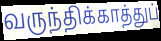
வருந்திக்காத்துப்